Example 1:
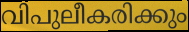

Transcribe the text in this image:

വിപുലീകരിക്കും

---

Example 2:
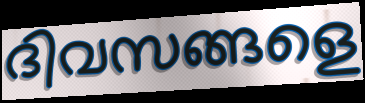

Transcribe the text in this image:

ദിവസങ്ങളെ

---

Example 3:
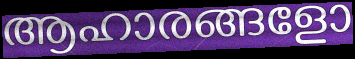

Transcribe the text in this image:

ആഹാരങ്ങളോ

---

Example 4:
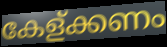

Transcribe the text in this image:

കേള്ക്കണം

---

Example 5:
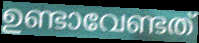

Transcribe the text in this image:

ഉണ്ടാവേണ്ടത്